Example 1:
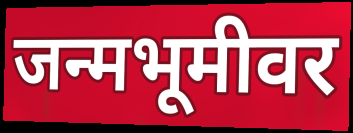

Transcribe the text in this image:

जन्मभूमीवर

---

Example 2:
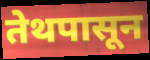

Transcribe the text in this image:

तेथपासून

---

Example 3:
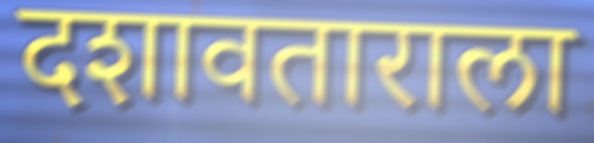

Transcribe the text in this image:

दशावताराला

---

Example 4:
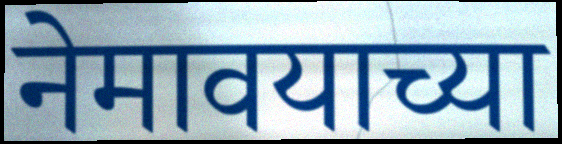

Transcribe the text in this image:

नेमावयाच्या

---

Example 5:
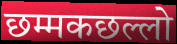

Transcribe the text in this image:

छम्मकछल्लो